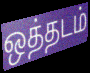
ஒத்தடம்